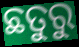
ଛତୁରୁ